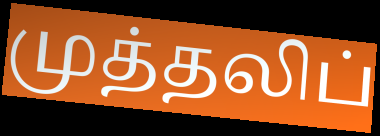
முத்தலிப்